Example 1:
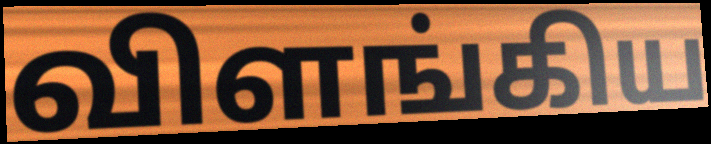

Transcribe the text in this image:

விளங்கிய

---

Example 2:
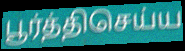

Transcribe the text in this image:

பூர்த்திசெய்ய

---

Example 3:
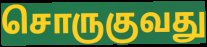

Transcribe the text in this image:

சொருகுவது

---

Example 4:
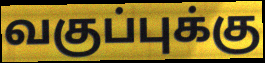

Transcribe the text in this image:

வகுப்புக்கு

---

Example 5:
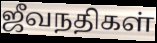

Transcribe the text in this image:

ஜீவநதிகள்